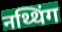
नथ्थिंग